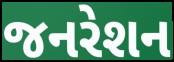
જનરેશન